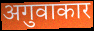
अगुवाकार